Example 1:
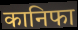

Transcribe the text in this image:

कानिफा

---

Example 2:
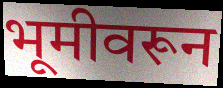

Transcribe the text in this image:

भूमीवरून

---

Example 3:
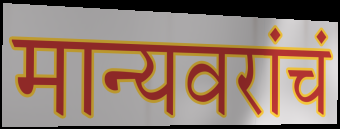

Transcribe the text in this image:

मान्यवरांचं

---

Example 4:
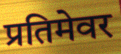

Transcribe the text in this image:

प्रतिमेवर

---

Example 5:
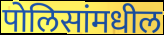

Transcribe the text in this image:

पोलिसांमधील